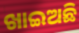
ଖାଇଅଛି